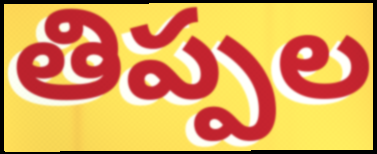
తిప్పల